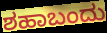
ಶಹಾಬಂದು